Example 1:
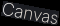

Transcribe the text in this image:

Canvas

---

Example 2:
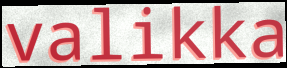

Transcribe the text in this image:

valikka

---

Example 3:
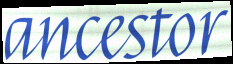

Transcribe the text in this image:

ancestor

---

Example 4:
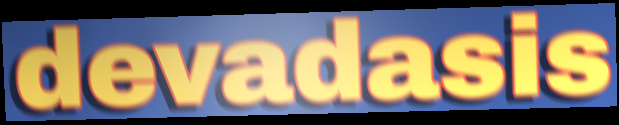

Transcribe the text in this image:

devadasis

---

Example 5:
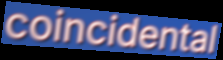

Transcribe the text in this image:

coincidental